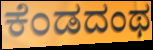
ಕೆಂಡದಂಥ